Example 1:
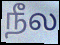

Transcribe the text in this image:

நீல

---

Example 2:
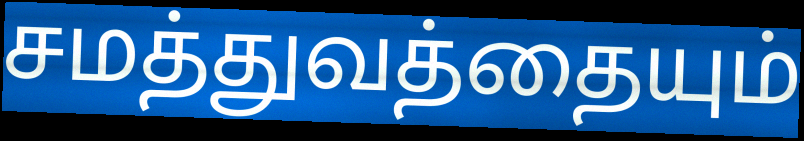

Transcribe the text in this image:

சமத்துவத்தையும்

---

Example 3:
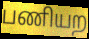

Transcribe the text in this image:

பணியற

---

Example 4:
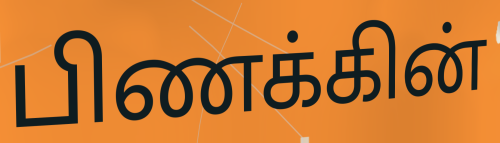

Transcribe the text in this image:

பிணக்கின்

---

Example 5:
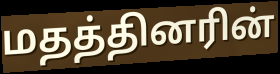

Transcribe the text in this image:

மதத்தினரின்